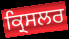
ਕ੍ਰਿਸਲਰ